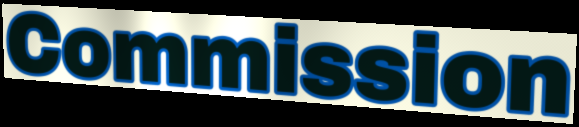
Commission